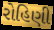
રોહિણી